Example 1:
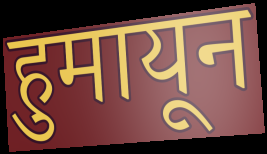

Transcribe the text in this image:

हुमायून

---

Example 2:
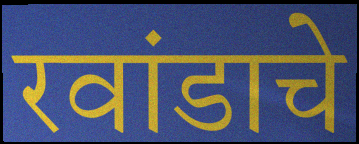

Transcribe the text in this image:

रवांडाचे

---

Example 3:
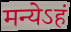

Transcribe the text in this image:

मन्येऽहं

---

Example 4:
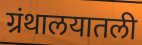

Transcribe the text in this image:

ग्रंथालयातली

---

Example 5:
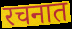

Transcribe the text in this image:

रचनात